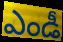
ఎండీ